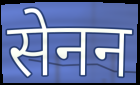
सेनन